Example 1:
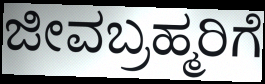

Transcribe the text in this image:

ಜೀವಬ್ರಹ್ಮರಿಗೆ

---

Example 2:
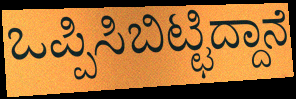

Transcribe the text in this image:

ಒಪ್ಪಿಸಿಬಿಟ್ಟಿದ್ದಾನೆ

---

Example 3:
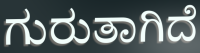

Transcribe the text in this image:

ಗುರುತಾಗಿದೆ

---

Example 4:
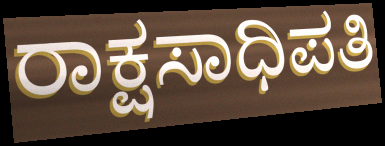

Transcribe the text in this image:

ರಾಕ್ಷಸಾಧಿಪತಿ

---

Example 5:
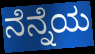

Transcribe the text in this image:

ನೆನ್ನೆಯ